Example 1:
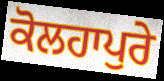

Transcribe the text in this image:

ਕੋਲਹਾਪੁਰੇ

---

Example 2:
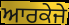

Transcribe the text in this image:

ਆਰਕੇਜੇ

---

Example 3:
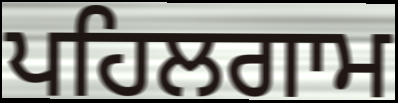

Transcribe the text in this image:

ਪਹਿਲਗਾਮ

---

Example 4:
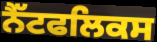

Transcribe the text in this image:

ਨੈੱਟਫਲਿਕਸ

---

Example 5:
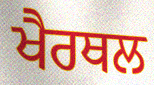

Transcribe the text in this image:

ਖੈਰਥਲ